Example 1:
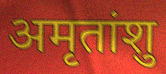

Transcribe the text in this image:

अमृतांशु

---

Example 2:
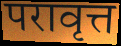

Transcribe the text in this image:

परावृत्त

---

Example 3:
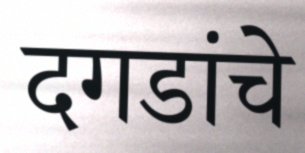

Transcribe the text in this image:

दगडांचे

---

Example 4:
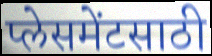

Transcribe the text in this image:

प्लेसमेंटसाठी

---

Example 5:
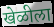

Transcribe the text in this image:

खेळीला